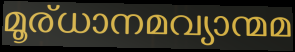
മൂര്ധാനമവ്യാന്മമ